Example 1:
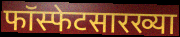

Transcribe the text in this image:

फॉस्फेटसारख्या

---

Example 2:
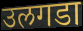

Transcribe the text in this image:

उलगडा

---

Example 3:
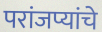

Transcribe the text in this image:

परांजप्यांचे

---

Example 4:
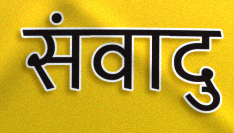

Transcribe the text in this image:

संवादु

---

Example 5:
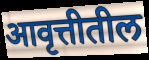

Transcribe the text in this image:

आवृत्तीतील